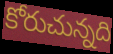
కోరుచున్నది